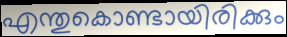
എന്തുകൊണ്ടായിരിക്കും